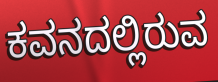
ಕವನದಲ್ಲಿರುವ